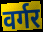
वर्गर